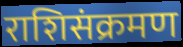
राशिसंक्रमण